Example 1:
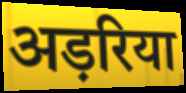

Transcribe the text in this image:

अड़रिया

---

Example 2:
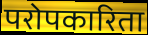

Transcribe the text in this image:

परोपकारिता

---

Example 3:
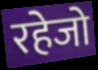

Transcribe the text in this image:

रहेजो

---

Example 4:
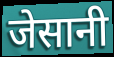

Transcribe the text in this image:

जेसानी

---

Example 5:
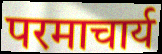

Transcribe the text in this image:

परमाचार्य